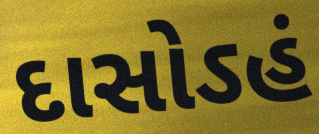
દાસોઽહં